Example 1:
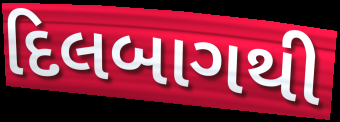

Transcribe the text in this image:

દિલબાગથી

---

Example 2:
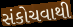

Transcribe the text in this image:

સંકોચવાથી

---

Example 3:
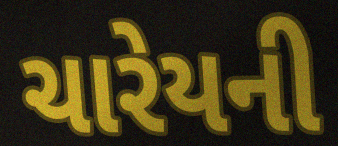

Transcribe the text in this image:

ચારેયની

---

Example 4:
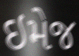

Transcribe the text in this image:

ઇમેજ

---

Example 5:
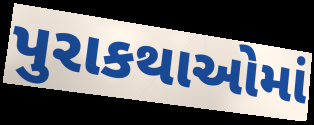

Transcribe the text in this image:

પુરાકથાઓમાં